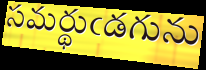
సమర్థుఁడగును